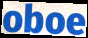
oboe